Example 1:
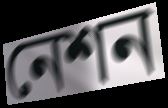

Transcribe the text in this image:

নেশন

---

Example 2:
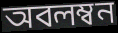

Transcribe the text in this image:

অবলম্বন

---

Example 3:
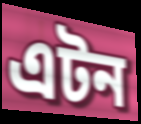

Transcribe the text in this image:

এটন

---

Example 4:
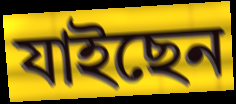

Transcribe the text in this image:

যাইছেন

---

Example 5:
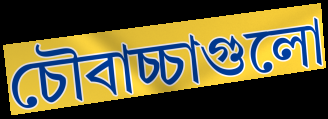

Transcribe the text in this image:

চৌবাচ্চাগুলো